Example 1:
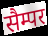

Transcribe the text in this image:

सैम्पर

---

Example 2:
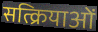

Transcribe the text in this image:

सत्क्रियाओं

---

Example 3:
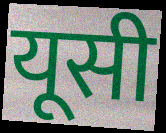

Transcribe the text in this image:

यूसी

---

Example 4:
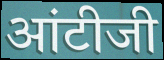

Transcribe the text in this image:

आंटीजी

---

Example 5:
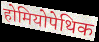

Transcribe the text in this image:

होमियोपेथिक